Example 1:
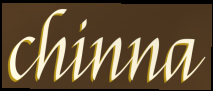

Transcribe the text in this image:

chinna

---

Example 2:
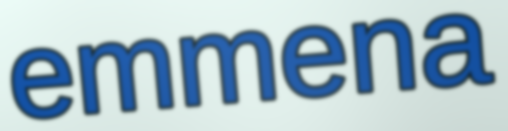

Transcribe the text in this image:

emmena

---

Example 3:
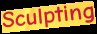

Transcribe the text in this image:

Sculpting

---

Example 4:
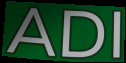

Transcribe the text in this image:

ADI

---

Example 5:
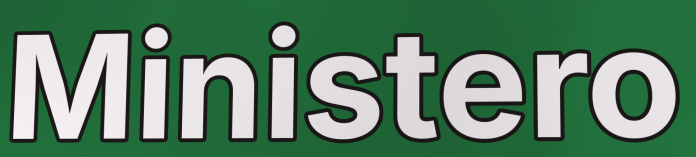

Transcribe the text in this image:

Ministero